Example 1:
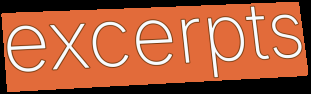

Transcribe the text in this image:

excerpts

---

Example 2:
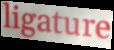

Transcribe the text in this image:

ligature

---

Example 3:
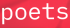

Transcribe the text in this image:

poets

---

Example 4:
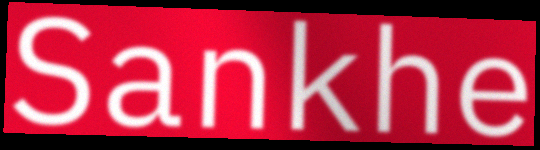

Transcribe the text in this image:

Sankhe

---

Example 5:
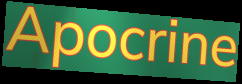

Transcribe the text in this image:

Apocrine